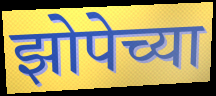
झोपेच्या